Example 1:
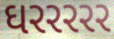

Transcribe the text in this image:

ઘરરરરર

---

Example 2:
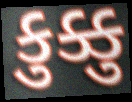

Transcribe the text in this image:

કુક્કુ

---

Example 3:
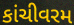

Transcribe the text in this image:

કાંચીવરમ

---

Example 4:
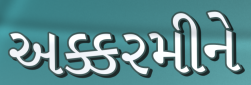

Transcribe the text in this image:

અક્કરમીને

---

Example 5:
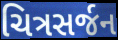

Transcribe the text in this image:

ચિત્રસર્જન